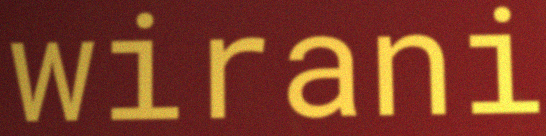
wirani